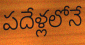
పదేళ్లలోనే